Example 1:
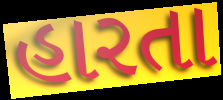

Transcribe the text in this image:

હારતા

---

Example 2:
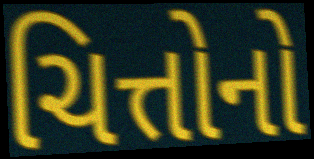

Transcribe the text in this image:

ચિત્તોનો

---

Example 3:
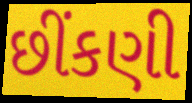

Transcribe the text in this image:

છીંકણી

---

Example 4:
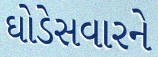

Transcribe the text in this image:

ઘોડેસવારને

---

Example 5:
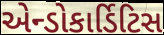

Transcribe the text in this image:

એન્ડોકાર્ડિટિસ